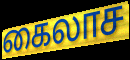
கைலாச